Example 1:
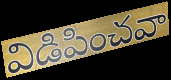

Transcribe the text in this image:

విడిపించవా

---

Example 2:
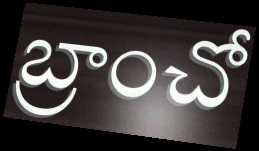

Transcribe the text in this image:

బ్రాంచో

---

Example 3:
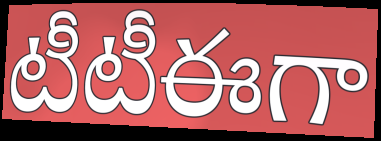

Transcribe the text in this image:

టీటీఈగా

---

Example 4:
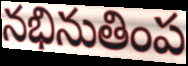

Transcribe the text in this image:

నభినుతింప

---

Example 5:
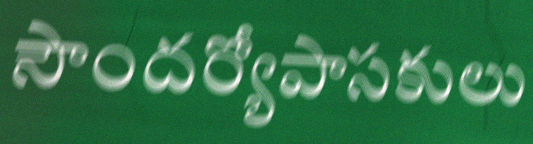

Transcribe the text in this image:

సౌందర్యోపాసకులు